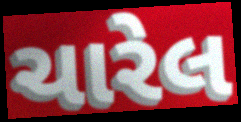
ચારેલ